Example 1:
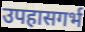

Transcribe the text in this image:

उपहासगर्भ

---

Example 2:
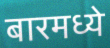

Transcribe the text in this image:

बारमध्ये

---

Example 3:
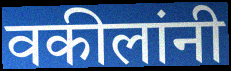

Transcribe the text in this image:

वकीलांनी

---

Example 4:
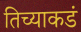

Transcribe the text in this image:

तिच्याकडं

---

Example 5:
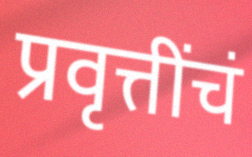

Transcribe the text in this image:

प्रवृत्तींचं